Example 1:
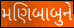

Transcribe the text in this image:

મણિબાબુને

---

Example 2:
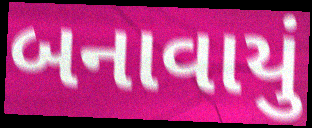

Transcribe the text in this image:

બનાવાયું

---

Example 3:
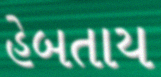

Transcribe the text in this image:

હેબતાય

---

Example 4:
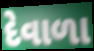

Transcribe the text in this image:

દેવાળા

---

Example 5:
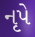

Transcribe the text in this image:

નૃપે